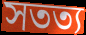
সতত্য